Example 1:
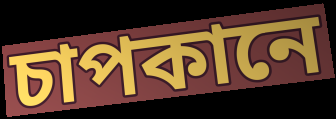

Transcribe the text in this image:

চাপকানে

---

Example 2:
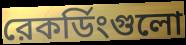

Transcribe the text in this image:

রেকর্ডিংগুলো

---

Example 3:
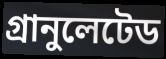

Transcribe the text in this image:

গ্রানুলেটেড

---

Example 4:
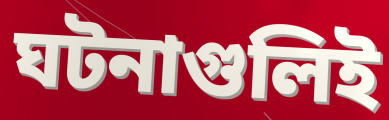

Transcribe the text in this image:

ঘটনাগুলিই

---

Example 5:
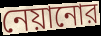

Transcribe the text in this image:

নেয়ানোর